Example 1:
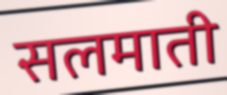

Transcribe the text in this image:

सलमाती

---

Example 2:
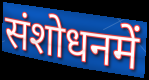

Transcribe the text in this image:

संशोधनमें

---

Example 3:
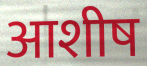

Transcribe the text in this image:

आशीष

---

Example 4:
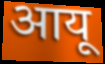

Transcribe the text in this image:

आयू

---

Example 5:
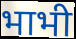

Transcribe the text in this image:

भाभी